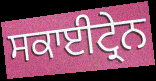
ਸਕਾਈਟ੍ਰੇਨ